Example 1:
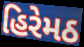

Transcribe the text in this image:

હિરેમઠ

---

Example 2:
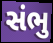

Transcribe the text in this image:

સંભુ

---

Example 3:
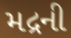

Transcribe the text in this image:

મદ્રની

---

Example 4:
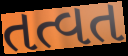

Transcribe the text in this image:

તત્વત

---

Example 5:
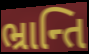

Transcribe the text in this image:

ભ્રાન્તિ